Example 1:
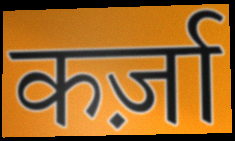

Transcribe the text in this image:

कर्ज़ा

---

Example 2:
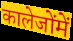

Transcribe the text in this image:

कालेजोंमें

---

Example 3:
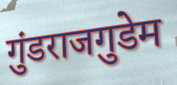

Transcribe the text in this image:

गुंडराजगुडेम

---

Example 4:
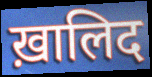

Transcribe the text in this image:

ख़ालिद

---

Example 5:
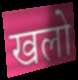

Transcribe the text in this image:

खलो